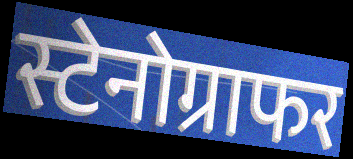
स्टेनोग्राफर